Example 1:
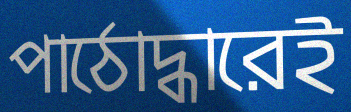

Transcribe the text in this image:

পাঠোদ্ধারেই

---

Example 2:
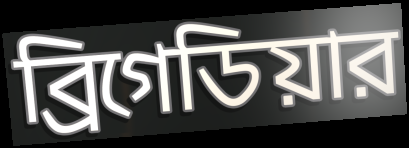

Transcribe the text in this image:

ব্রিগেডিয়ার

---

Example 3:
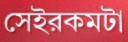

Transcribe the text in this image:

সেইরকমটা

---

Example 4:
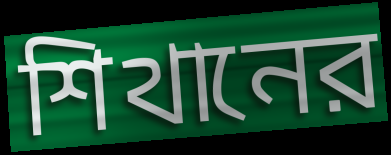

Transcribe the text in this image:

শিথানের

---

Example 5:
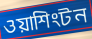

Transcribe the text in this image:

ওয়াশিংটন